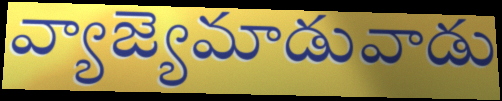
వ్యాజ్యెమాడువాడు